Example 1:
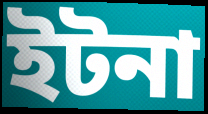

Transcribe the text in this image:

ইটনা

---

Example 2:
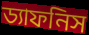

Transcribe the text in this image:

ড্যাফনিস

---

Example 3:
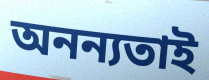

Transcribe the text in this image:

অনন্যতাই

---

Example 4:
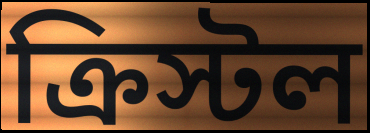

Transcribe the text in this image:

ক্রিস্টল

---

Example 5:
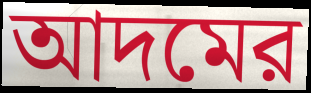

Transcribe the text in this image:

আদমের